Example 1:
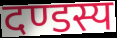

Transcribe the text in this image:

दण्डस्य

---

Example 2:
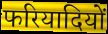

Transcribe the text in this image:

फरियादियों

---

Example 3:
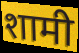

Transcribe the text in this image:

शामी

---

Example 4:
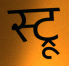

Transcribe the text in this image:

स्ट्रू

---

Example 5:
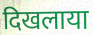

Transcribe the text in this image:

दिखलाया